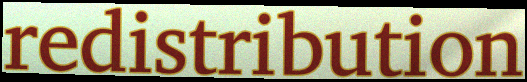
redistribution